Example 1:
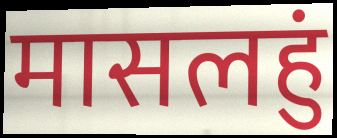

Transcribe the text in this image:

मासलहुं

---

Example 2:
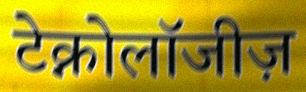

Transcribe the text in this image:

टेक्नोलॉजीज़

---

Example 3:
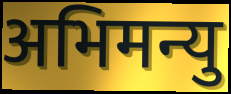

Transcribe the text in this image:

अभिमन्यु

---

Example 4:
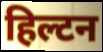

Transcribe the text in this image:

हिल्टन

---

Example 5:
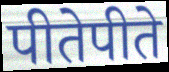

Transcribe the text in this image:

पीतेपीते